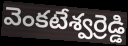
వెంకటేశ్వర్రెడ్డి